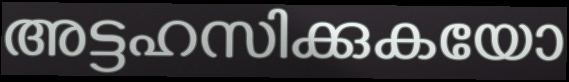
അട്ടഹസിക്കുകയോ